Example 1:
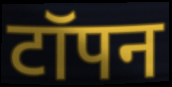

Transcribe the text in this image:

टॉपन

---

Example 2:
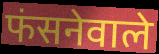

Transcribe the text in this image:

फंसनेवाले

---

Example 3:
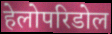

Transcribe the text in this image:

हेलोपरिडोल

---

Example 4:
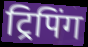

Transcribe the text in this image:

ट्रिपिंग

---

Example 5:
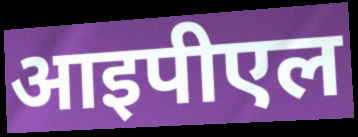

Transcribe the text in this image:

आइपीएल